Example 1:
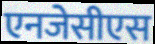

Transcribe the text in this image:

एनजेसीएस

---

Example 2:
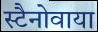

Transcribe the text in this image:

स्टैनोवाया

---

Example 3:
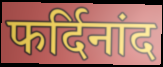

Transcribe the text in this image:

फर्दिनांद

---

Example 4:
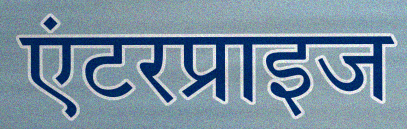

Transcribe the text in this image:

एंटरप्राइज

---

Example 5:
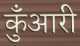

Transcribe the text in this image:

कुँआरी